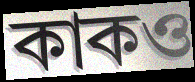
কাকও